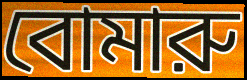
বোমাৰু